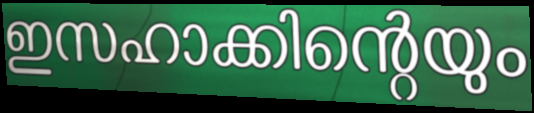
ഇസഹാക്കിന്റെയും